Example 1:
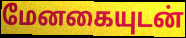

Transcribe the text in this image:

மேனகையுடன்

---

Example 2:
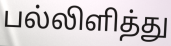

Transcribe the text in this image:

பல்லிளித்து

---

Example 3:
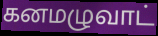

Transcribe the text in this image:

கனமழுவாட்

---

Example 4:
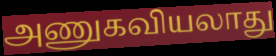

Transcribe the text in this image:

அணுகவியலாது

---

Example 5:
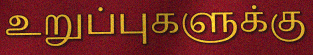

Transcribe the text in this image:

உறுப்புகளுக்கு